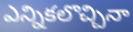
ఎన్నికలొచ్చినా